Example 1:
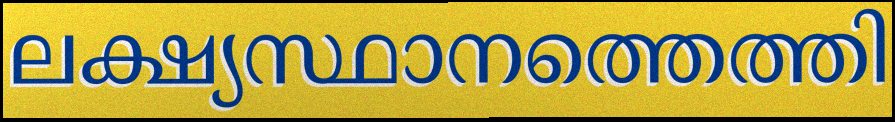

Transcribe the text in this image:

ലക്ഷ്യസ്ഥാനത്തെത്തി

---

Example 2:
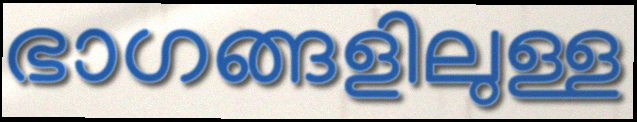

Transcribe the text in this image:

ഭാഗങ്ങളിലുള്ള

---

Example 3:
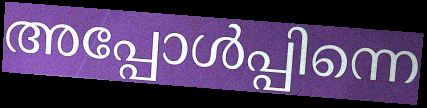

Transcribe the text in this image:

അപ്പോൾപ്പിന്നെ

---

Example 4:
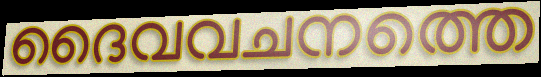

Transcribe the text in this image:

ദൈവവചനത്തെ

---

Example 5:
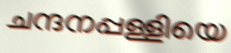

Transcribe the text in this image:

ചന്ദനപ്പള്ളിയെ